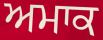
ਅਮਾਕ